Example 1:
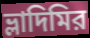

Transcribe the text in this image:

ভ্লাদিমির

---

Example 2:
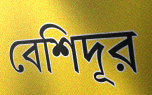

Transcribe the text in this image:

বেশিদূর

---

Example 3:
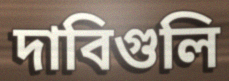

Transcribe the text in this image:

দাবিগুলি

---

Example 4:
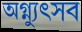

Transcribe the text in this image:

অগ্ন্যুৎসব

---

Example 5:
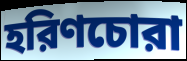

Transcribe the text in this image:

হরিণচোরা